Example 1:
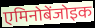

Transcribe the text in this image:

एमिनोबेंजोइक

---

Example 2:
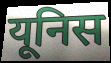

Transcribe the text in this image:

यूनिस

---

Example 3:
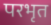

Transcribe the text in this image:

परभृत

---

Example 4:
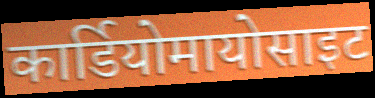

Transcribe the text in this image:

कार्डियोमायोसाइट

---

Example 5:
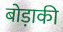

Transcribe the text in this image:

बोड़ाकी